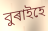
বুৰাইহে